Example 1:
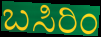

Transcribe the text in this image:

ಬಸಿರಿಂ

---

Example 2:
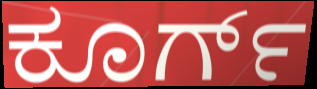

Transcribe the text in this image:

ಕೂರ್ಗ್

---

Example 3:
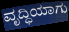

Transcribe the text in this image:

ವೃದ್ಧಿಯಾಗು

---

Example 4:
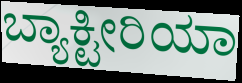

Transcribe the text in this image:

ಬ್ಯಾಕ್ಟೀರಿಯಾ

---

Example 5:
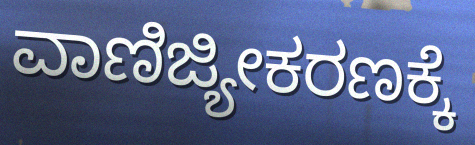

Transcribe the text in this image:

ವಾಣಿಜ್ಯೀಕರಣಕ್ಕೆ